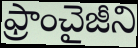
ఫ్రాంచైజీని